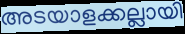
അടയാളക്കല്ലായി